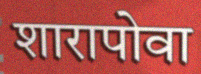
शारापोवा